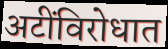
अटींविरोधात